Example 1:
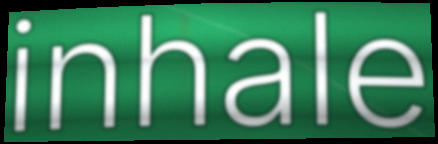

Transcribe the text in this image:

inhale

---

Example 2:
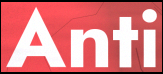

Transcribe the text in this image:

Anti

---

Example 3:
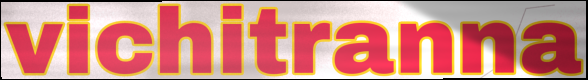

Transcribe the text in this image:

vichitranna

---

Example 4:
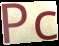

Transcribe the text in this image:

Pc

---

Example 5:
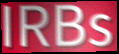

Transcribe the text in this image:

IRBs